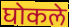
घोकले